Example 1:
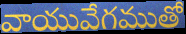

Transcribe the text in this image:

వాయువేగముతో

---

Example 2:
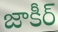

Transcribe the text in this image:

జాకీర్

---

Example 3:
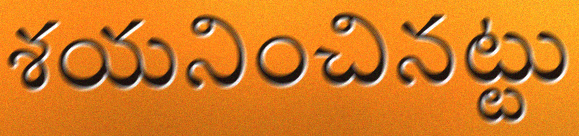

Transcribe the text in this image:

శయనించినట్టు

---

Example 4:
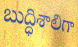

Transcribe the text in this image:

బుద్ధిశాలిగా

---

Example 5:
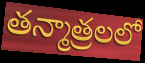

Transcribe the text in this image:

తన్మాత్రలలో